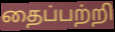
தைப்பற்றி